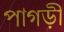
পাগড়ী